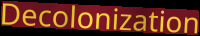
Decolonization